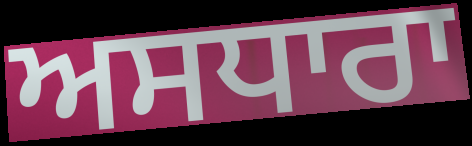
ਅਸਧਾਰਾ